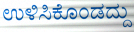
ಉಳಿಸಿಕೊಂಡದ್ದು